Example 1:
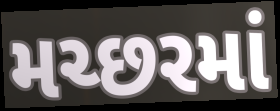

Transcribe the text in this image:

મચ્છરમાં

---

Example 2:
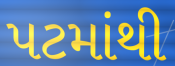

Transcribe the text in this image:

પટમાંથી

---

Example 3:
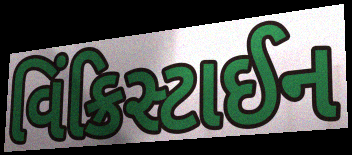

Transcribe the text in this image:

વિંક્રિસ્ટાઈન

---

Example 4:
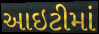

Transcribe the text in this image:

આઇટીમાં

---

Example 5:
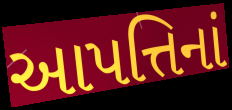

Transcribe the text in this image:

આપત્તિનાં